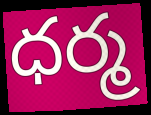
ధర్మ